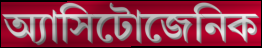
অ্যাসিটোজেনিক